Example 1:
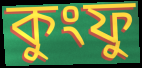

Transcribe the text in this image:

কুংফু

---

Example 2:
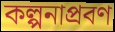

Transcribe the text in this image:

কল্পনাপ্রবণ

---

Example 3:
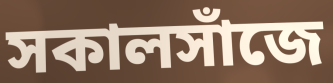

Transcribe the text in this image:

সকালসাঁজে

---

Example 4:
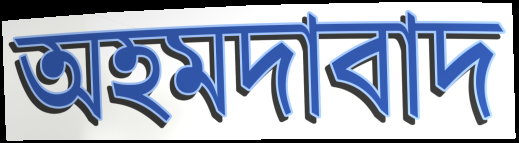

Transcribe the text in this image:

অহমদাবাদ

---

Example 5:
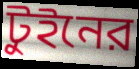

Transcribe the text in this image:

টুইনের